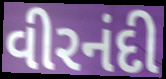
વીરનંદી